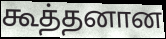
கூத்தனான